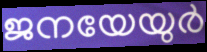
ജനയേയുർ